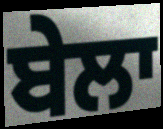
ਬੇਲਾ